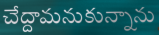
చేద్దామనుకున్నాను